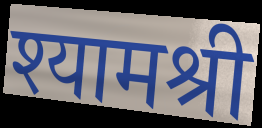
श्यामश्री